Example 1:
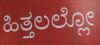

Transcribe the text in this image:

ಹಿತ್ತಲಲ್ಲೋ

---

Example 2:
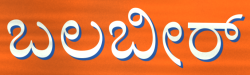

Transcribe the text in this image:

ಬಲಬೀರ್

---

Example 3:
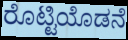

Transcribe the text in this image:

ರೊಟ್ಟಿಯೊಡನೆ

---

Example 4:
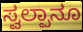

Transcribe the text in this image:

ಸ್ವಲ್ಪಾನೂ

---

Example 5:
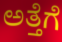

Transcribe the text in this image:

ಅತ್ತೆಗೆ